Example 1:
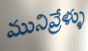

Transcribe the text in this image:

మునివ్రేళ్ళు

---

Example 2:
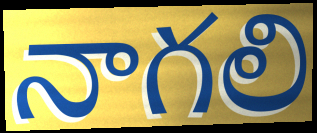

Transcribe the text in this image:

నాగలి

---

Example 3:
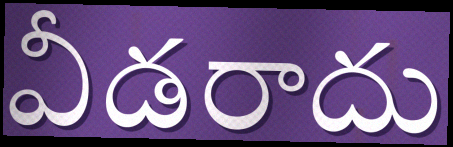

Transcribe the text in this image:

వీడరాదు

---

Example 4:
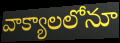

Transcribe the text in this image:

వాక్యాలలోనూ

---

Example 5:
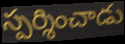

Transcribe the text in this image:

స్పర్శించాడు